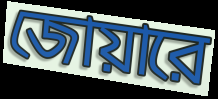
জোয়ারে